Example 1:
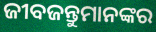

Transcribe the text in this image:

ଜୀବଜନ୍ତୁମାନଙ୍କର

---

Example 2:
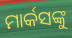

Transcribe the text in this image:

ମାର୍କସଙ୍କୁ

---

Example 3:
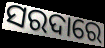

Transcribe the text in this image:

ସରଦାରେ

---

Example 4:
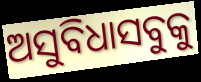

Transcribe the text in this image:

ଅସୁବିଧାସବୁକୁ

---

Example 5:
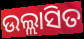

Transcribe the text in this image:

ଉଲ୍ଲାସିତ